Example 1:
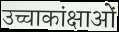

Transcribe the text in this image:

उच्चाकांक्षाओं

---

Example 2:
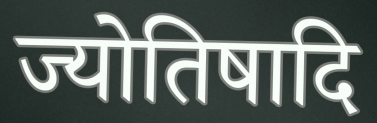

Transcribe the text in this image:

ज्योतिषादि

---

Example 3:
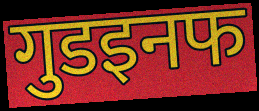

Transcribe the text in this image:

गुडइनफ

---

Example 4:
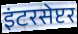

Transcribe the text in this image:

इंटरसेप्टर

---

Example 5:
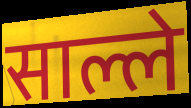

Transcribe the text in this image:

साल्ले